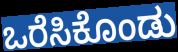
ಒರೆಸಿಕೊಂಡು